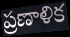
ప్రణాళిక